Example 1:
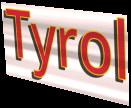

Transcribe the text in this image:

Tyrol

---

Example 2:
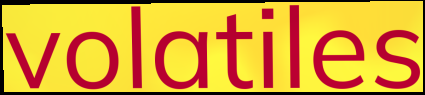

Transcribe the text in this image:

volatiles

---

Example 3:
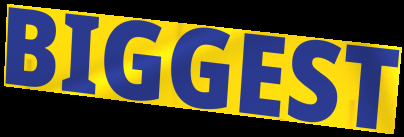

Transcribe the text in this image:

BIGGEST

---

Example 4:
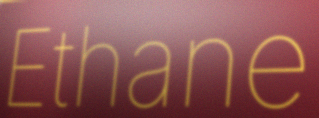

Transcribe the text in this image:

Ethane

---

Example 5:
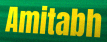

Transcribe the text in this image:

Amitabh